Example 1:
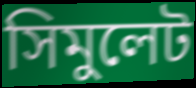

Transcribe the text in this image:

সিমুলেট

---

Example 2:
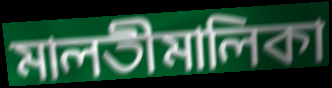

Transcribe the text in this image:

মালতীমালিকা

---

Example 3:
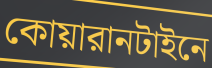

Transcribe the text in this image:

কোয়ারানটাইনে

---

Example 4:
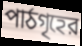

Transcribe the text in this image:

পাঠগৃহের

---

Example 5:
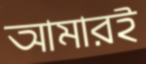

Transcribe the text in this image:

আমারই